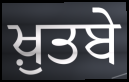
ਖ਼ੁਤਬੇ